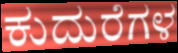
ಕುದುರೆಗಳ